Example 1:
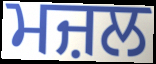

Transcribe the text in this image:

ਮਜ਼ਲ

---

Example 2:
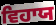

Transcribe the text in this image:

ਵਿਹਾਯ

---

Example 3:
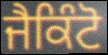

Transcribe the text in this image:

ਜੈਕਿੰਟੋ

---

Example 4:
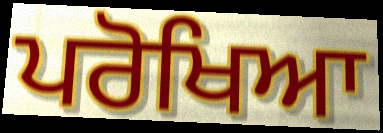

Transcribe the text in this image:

ਪਰੋਖਿਆ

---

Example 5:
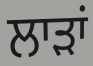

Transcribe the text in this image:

ਲਾੜਾਂ